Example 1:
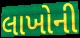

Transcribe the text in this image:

લાખોની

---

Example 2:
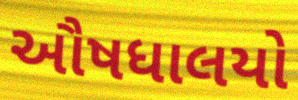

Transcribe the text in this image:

ઔષધાલયો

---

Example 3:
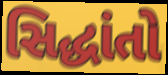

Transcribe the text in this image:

સિદ્ધાંતો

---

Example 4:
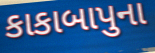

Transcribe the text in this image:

કાકાબાપુના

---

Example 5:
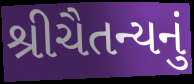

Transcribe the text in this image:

શ્રીચૈતન્યનું